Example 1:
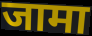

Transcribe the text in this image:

जामा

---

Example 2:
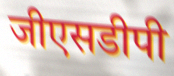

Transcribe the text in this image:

जीएसडीपी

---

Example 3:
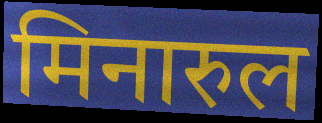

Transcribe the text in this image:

मिनारुल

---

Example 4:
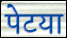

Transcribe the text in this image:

पेटया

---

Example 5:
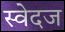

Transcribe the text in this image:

स्वेदज